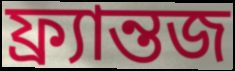
ফ্র্যান্তজ